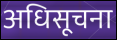
अधिसूचना